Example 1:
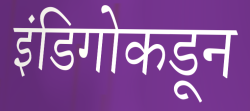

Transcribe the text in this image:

इंडिगोकडून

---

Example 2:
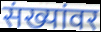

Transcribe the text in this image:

संख्यांवर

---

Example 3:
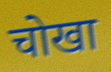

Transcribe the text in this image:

चोखा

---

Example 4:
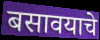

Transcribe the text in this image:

बसावयाचे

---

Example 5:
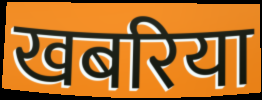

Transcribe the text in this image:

खबरिया